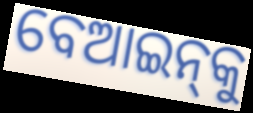
ବେଆଇନ୍‌କୁ